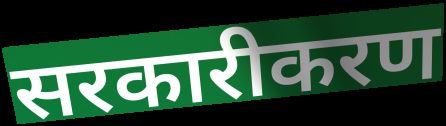
सरकारीकरण